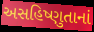
અસહિષ્ણુતાનાં